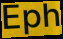
Eph